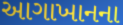
આગાખાનના